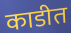
काडीत